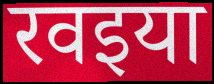
रवइया